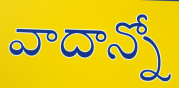
వాదాన్నో